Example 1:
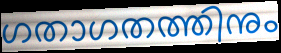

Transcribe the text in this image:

ഗതാഗതത്തിനും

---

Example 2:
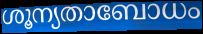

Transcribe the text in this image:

ശൂന്യതാബോധം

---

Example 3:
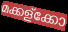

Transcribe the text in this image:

മക്കള്ക്കോ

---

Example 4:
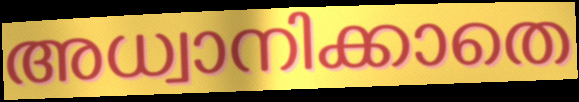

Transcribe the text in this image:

അധ്വാനിക്കാതെ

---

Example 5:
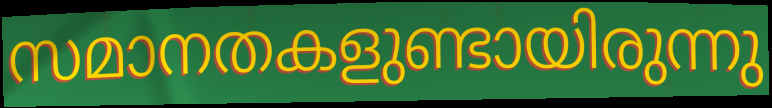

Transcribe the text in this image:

സമാനതകളുണ്ടായിരുന്നു